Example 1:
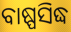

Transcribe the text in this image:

ବାଷ୍ପସିଦ୍ଧ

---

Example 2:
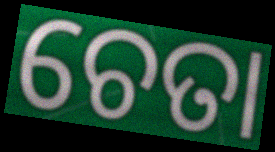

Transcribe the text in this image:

ଚେତା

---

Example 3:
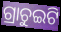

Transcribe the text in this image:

ଗ୍ରାଚୁଇଟି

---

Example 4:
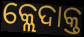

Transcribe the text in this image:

କ୍ଲେଦାକ୍ତ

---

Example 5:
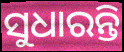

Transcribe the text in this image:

ସୁଧାରନ୍ତି